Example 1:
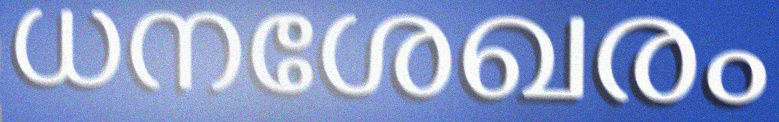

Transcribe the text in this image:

ധനശേഖരം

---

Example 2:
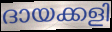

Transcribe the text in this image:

ദായക്കളി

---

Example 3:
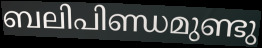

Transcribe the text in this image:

ബലിപിണ്ഡമുണ്ടു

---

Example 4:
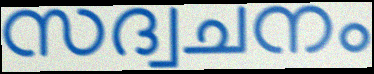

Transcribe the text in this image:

സദ്വചനം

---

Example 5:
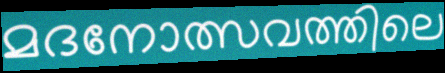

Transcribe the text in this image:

മദനോത്സവത്തിലെ